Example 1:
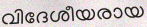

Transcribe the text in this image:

വിദേശീയരായ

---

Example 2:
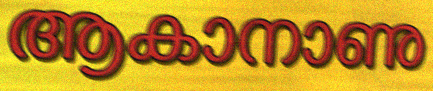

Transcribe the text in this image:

ആകാനാണു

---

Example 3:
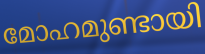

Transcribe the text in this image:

മോഹമുണ്ടായി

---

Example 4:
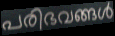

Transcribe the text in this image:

പരിഭവങ്ങൾ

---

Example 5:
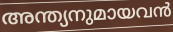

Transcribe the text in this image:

അന്ത്യനുമായവൻ